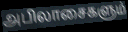
அபிலாசைகளும்